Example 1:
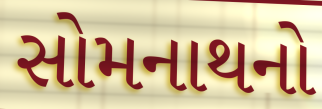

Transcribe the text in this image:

સોમનાથનો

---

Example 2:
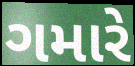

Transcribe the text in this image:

ગમારે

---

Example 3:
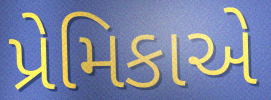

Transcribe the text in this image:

પ્રેમિકાએ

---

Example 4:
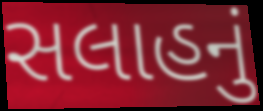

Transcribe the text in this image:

સલાહનું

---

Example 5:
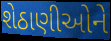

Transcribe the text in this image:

શેઠાણીઓને